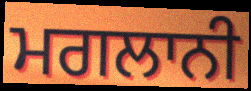
ਮਗਲਾਨੀ